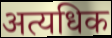
अत्यधिक